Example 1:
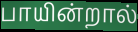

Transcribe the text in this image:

பாயின்றால்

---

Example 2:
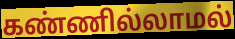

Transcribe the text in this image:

கண்ணில்லாமல்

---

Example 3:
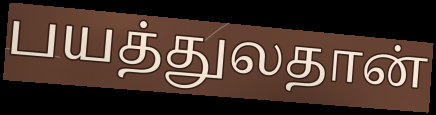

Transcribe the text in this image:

பயத்துலதான்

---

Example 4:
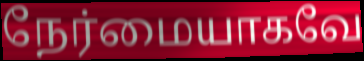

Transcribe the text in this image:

நேர்மையாகவே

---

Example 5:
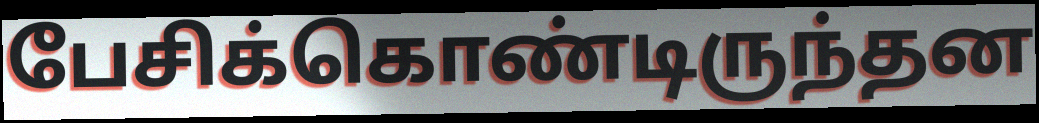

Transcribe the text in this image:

பேசிக்கொண்டிருந்தன